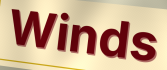
Winds